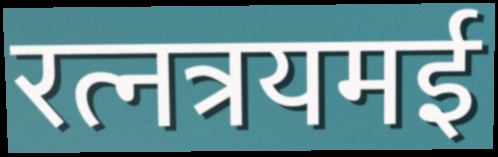
रत्नत्रयमई